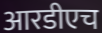
आरडीएच